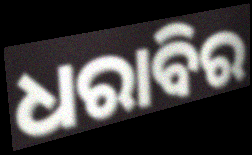
ଧରାବିର